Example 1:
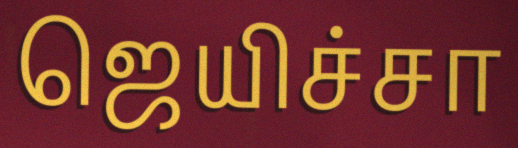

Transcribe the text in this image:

ஜெயிச்சா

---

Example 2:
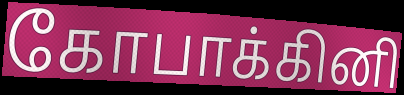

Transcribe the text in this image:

கோபாக்கினி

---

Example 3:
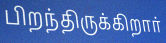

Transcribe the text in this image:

பிறந்திருக்கிறார்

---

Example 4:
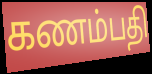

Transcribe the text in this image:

கணம்பதி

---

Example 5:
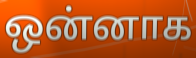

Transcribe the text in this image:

ஒன்னாக